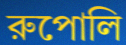
রুপোলি